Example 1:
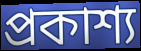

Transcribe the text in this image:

প্রকাশ্য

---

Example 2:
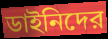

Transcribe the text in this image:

ডাইনিদের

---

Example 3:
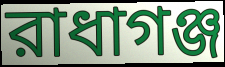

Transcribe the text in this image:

রাধাগঞ্জ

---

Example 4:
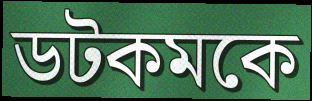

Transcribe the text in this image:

ডটকমকে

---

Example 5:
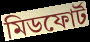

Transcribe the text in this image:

মিডফোর্ট